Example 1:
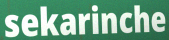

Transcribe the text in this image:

sekarinche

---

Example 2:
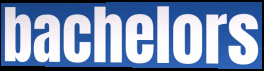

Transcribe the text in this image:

bachelors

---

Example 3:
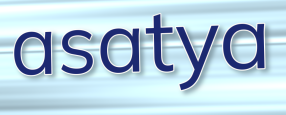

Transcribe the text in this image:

asatya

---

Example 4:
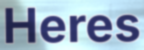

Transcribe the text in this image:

Heres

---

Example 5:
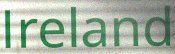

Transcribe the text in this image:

Ireland